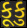
કૂકુ